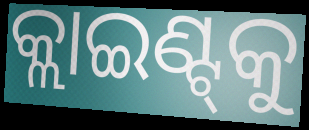
କ୍ଲାଇଣ୍ଟ୍‌କୁ